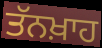
ਤੱਨਖ਼ਾਹ